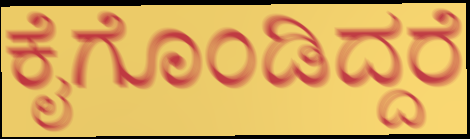
ಕೈಗೊಂಡಿದ್ದರೆ